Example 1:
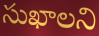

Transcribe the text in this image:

సుఖాలని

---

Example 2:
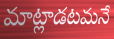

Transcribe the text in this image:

మాట్లాడటమనే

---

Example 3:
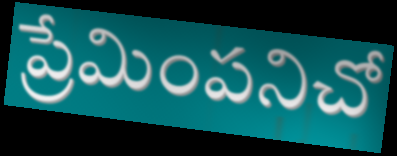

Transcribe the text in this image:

ప్రేమింపనిచో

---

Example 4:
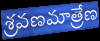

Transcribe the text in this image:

శ్రవణమాత్రేణ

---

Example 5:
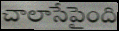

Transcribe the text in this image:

చాలాసేపైంది